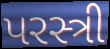
પરસ્ત્રી